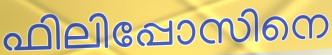
ഫിലിപ്പോസിനെ